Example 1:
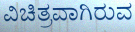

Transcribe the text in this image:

ವಿಚಿತ್ರವಾಗಿರುವ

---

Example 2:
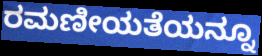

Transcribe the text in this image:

ರಮಣೀಯತೆಯನ್ನೂ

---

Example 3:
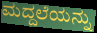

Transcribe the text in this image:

ಮದ್ದಲೆಯನ್ನು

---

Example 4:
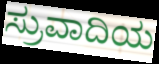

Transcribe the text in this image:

ಸ್ರುವಾದಿಯ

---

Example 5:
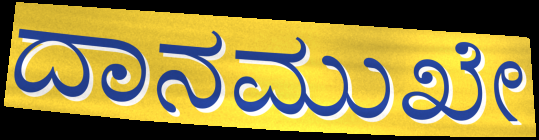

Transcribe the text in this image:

ದಾನಮುಖೇ